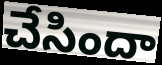
చేసిందా